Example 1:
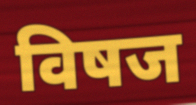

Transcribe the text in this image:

विषज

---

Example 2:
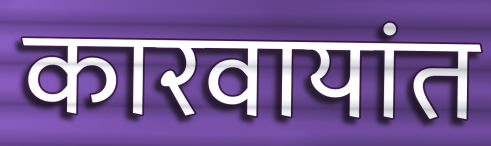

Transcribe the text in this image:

कारवायांत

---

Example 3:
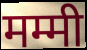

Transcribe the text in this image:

मम्मी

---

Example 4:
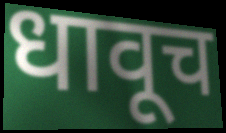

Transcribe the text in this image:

धावूच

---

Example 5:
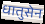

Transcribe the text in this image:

धातुसेन